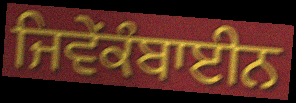
ਜਿਵੇਂਕੰਬਾਈਨ